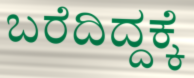
ಬರೆದಿದ್ದಕ್ಕೆ